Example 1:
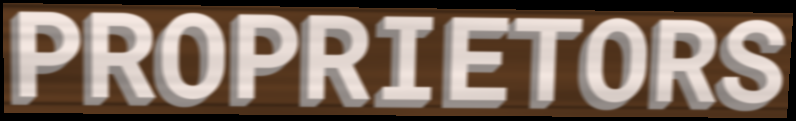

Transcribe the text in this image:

PROPRIETORS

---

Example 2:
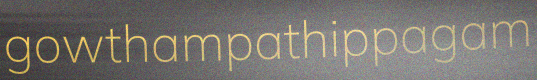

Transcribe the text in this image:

gowthampathippagam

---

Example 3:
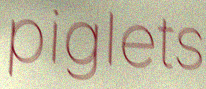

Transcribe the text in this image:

piglets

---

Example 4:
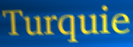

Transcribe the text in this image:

Turquie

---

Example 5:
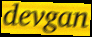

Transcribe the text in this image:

devgan